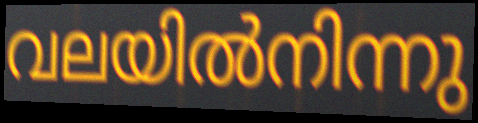
വലയിൽനിന്നു